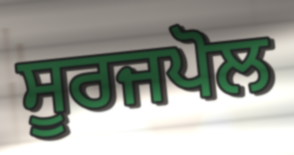
ਸੂਰਜਪੋਲ